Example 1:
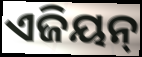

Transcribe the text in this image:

ଏଜିୟନ୍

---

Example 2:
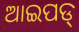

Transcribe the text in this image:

ଆଇପଡ୍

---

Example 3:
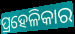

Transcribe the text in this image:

ପ୍ରହେଳିକାର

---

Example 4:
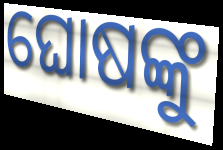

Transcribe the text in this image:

ଘୋଷଙ୍କୁ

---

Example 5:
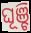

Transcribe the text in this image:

ଘୂଞ୍ଚି